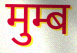
मुम्ब